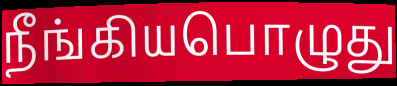
நீங்கியபொழுது